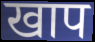
खाप